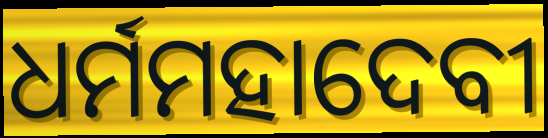
ଧର୍ମମହାଦେବୀ